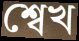
শ্বেখ